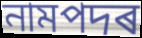
নামপদৰ